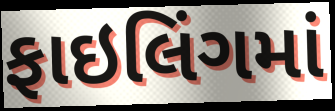
ફાઇલિંગમાં